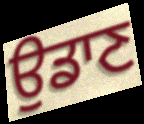
ਉਡਾਣ